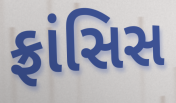
ફ્રાંસિસ